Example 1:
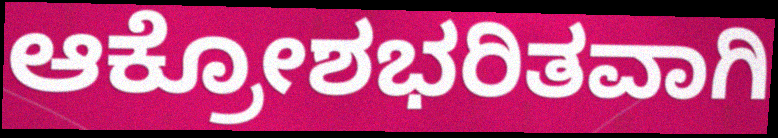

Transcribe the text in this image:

ಆಕ್ರೋಶಭರಿತವಾಗಿ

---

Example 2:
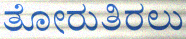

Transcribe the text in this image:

ತೋರುತಿರಲು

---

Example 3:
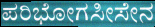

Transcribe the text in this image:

ಪರಿಭೋಗಸೀಸೇನ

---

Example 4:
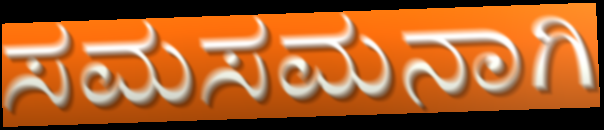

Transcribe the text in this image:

ಸಮಸಮನಾಗಿ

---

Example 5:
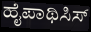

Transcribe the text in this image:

ಹೈಪಾಥಿಸಿಸ್